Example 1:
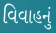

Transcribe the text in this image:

વિવાહનું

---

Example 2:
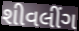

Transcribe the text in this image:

શીવલીંગ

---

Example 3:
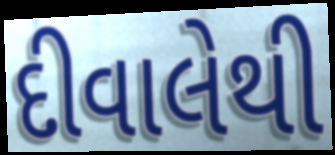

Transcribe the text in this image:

દીવાલેથી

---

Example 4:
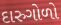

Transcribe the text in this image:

દારુગોળો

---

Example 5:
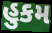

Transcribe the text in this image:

હુકમ